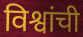
विश्वांची